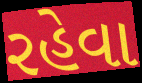
રહેવા